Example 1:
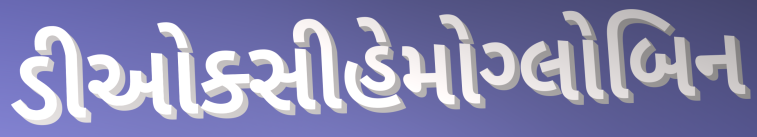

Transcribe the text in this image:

ડીઓક્સીહેમોગ્લોબિન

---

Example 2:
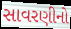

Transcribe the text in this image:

સાવરણીનો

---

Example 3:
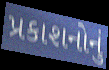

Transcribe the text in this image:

પ્રકાશનોનું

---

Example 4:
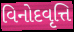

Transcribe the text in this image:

વિનોદવૃત્તિ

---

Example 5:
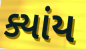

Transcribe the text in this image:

ક્યાંય